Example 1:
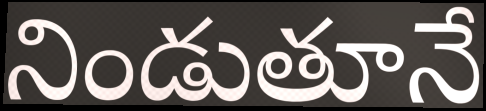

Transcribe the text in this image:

నిండుతూనే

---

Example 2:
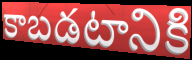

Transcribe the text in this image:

కాబడటానికి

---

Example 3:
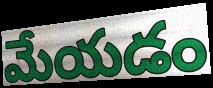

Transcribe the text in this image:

మేయడం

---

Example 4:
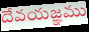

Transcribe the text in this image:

దేవయజ్ఞము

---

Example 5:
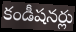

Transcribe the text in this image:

కండీషనర్లు